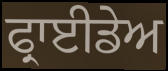
ਫ੍ਰਾਈਡੇਅ